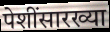
पेशींसारख्या